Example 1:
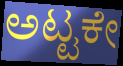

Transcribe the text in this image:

ಅಟ್ಟಕೇ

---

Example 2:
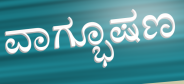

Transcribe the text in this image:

ವಾಗ್ಭೂಷಣ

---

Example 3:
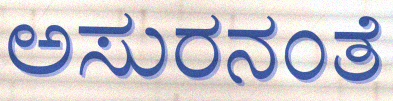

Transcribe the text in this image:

ಅಸುರನಂತೆ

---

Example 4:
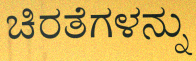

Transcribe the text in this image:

ಚಿರತೆಗಳನ್ನು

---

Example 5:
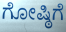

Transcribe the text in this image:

ಗೋಷ್ಠಿಗೆ